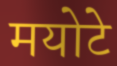
मयोटे